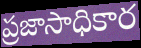
ప్రజాసాధికార